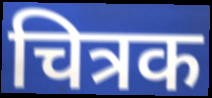
चित्रक